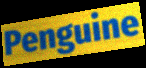
Penguine